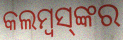
କଲମ୍ୱସ୍‌ଙ୍କର